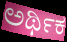
ಅರ್ಥಿಕ